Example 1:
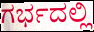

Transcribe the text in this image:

ಗರ್ಭದಲ್ಲಿ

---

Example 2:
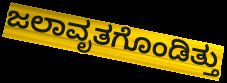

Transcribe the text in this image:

ಜಲಾವೃತಗೊಂಡಿತ್ತು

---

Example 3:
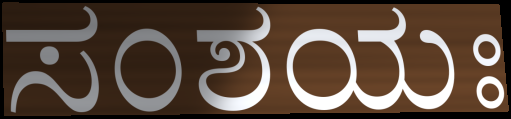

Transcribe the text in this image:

ಸಂಶಯಃ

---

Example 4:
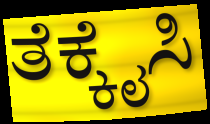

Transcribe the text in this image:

ತೆಕ್ಕೈಸಿ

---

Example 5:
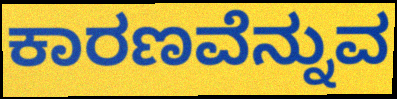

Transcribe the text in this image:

ಕಾರಣವೆನ್ನುವ